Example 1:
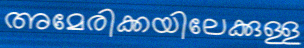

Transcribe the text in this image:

അമേരിക്കയിലേക്കുള്ള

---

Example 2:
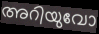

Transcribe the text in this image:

അറിയുവോ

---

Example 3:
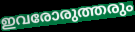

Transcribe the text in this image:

ഇവരോരുത്തരും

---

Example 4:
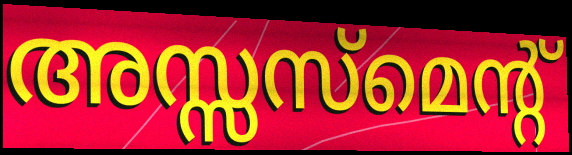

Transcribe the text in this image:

അസ്സസ്മെന്റ്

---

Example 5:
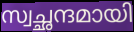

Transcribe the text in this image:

സ്വച്ഛന്ദമായി